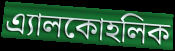
এ্যালকোহলিক